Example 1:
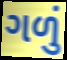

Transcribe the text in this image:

ગળું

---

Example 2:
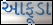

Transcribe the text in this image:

આફૂડા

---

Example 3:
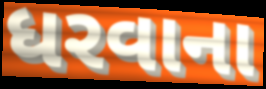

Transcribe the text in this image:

ધરવાના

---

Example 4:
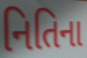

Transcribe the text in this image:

નિતિના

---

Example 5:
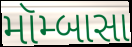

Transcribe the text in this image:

મૉમ્બાસા